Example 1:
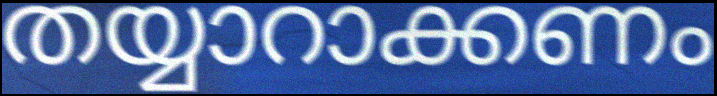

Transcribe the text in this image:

തയ്യാറാക്കണം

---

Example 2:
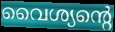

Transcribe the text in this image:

വൈശ്യന്റെ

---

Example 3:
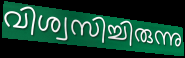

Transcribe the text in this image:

വിശ്വസിച്ചിരുന്നു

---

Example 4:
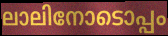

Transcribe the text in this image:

ലാലിനോടൊപ്പം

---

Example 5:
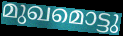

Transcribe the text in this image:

മുഖമൊട്ടു